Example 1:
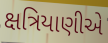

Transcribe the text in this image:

ક્ષત્રિયાણીએ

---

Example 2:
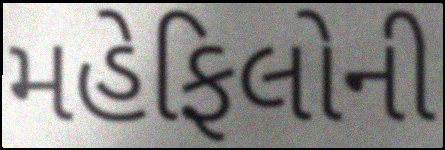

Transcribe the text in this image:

મહેફિલોની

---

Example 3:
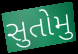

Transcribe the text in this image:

સુતોમુ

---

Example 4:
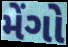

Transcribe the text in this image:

મેંગો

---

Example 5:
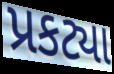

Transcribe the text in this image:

પ્રકટ્યા